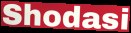
Shodasi